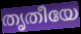
തൃതീയേ